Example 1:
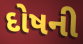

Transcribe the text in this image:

દોષની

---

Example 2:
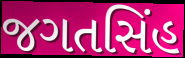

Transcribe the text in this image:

જગતસિંહ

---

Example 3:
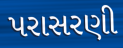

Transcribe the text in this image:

પરાસરણી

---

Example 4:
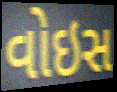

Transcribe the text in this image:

વોઇસ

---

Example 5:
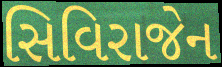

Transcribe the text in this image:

સિવિરાજેન